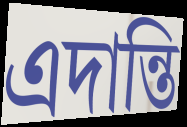
এদান্তি